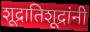
शूद्रातिशूद्रांनी